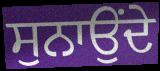
ਸੁਨਾਉਂਦੇ